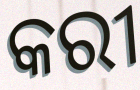
କରୀ